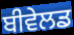
ਬੀਵੇਲਡ